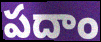
పదాం